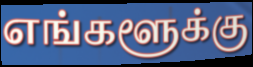
எங்களூக்கு